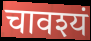
चावश्यं